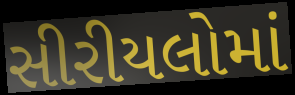
સીરીયલોમાં